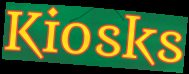
Kiosks